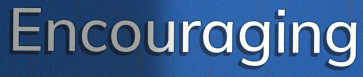
Encouraging